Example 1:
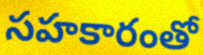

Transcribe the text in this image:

సహకారంతో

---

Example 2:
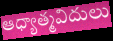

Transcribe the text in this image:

ఆధ్యాత్మవిదులు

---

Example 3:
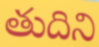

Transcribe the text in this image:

తుదిని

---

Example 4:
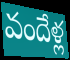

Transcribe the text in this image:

వందేళ్ల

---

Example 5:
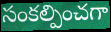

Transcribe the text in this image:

సంకల్పించగా